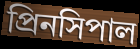
প্রিনসিপাল